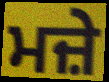
ਮਜ਼ੇ